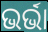
ଭର୍ଭା